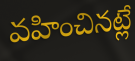
వహించినట్లే